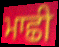
ਮਾਛੀ